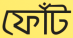
ফোঁট